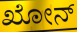
ಖೋನ್